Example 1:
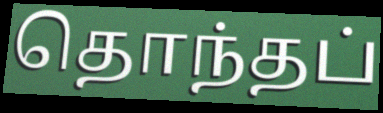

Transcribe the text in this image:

தொந்தப்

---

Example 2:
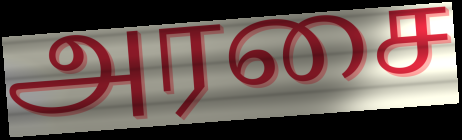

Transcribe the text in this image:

அரசை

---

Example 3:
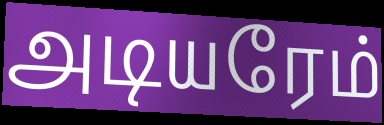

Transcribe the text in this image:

அடியரேம்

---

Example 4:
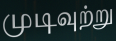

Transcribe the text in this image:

முடிவுற்று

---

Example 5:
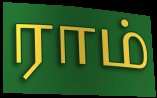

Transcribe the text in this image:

ராம்